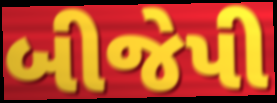
બીજેપી